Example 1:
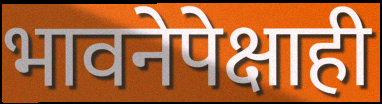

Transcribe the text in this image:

भावनेपेक्षाही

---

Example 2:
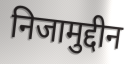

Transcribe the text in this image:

निजामुद्दीन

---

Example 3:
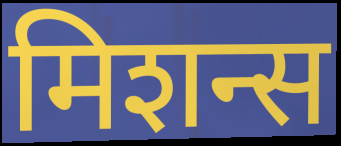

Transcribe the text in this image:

मिशन्स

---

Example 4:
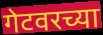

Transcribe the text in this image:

गेटवरच्या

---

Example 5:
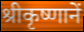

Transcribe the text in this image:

श्रीकृष्णानें